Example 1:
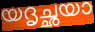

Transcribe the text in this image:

യദൃച്ഛയാ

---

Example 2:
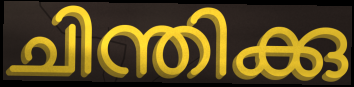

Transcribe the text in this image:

ചിന്തിക്കു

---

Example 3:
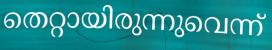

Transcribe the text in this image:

തെറ്റായിരുന്നുവെന്ന്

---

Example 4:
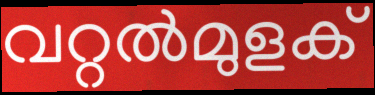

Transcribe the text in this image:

വറ്റൽമുളക്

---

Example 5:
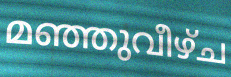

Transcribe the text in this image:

മഞ്ഞുവീഴ്ച